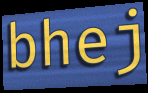
bhej